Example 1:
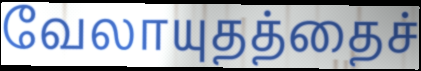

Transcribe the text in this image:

வேலாயுதத்தைச்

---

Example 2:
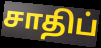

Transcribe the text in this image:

சாதிப்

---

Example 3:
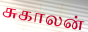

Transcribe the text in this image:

சுகாலன்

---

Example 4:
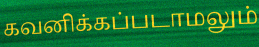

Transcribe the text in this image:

கவனிக்கப்படாமலும்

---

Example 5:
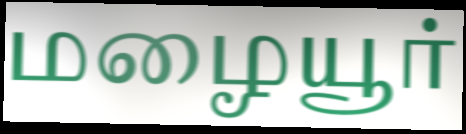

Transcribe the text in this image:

மழையூர்